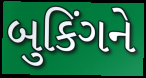
બુકિંગને